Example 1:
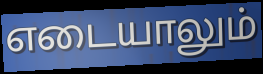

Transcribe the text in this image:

எடையாலும்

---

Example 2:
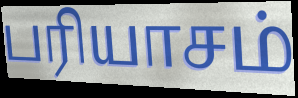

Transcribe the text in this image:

பரியாசம்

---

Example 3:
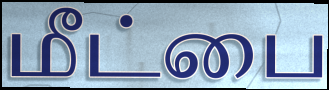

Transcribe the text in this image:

மீட்பை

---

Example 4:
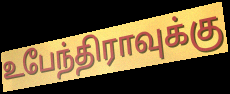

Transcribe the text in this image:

உபேந்திராவுக்கு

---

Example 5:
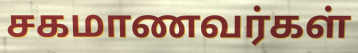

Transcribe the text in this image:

சகமாணவர்கள்